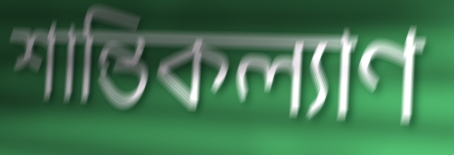
শান্তিকল্যাণ